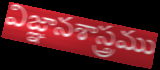
విజ్ఞానశాస్త్రము